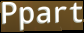
Ppart